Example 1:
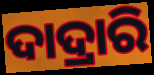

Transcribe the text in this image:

ଦାଦ୍ରାରି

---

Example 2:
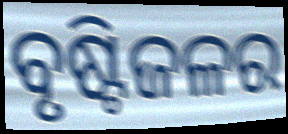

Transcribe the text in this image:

ବୃଷ୍ଟିଜଳର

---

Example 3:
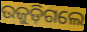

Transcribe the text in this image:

ଉଜୁଡ଼ିଗଲେ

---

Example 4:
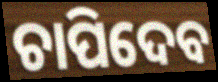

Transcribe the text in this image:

ଚାପିଦେବ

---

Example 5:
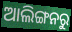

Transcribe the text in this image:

ଆଲିଙ୍ଗନରୁ